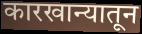
कारखान्यातून